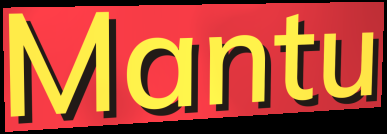
Mantu